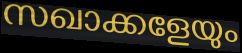
സഖാക്കളേയും